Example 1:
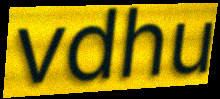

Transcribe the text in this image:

vdhu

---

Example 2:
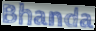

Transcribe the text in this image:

Bhanda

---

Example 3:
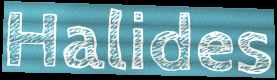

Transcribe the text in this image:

Halides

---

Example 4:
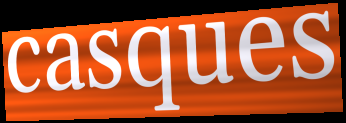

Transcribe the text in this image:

casques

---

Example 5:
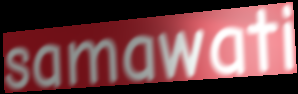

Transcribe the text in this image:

samawati